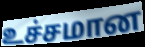
உச்சமான